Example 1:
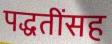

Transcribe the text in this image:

पद्धतींसह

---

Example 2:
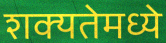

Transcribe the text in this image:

शक्यतेमध्ये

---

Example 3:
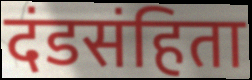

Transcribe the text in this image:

दंडसंहिता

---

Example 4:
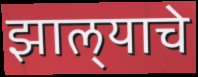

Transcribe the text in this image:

झाल्याचे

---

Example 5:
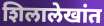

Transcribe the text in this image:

शिलालेखांत